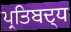
ਪ੍ਰਤਿਬਦ੍ਧ